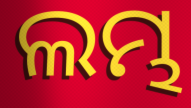
ଲମ୍ଭ